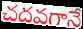
చదవగానే